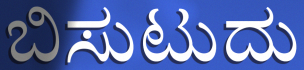
ಬಿಸುಟುದು